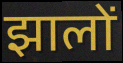
झालों